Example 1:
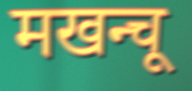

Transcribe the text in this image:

मखन्चू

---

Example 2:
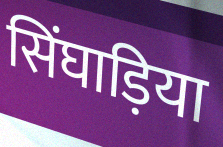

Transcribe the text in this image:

सिंघाड़िया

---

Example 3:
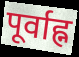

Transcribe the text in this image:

पूर्वाह्न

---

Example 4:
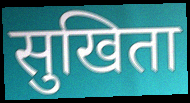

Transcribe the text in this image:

सुखिता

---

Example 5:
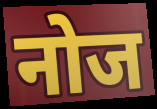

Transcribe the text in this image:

नोज